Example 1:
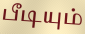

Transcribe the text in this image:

பீடியும்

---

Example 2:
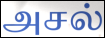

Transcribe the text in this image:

அசல்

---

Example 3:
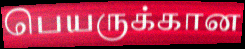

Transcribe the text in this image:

பெயருக்கான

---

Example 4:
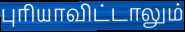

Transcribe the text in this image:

புரியாவிட்டாலும்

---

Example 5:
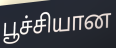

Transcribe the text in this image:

பூச்சியான